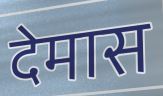
देमास